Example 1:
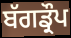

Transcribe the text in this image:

ਬੱਗਡ੍ਰੌਪ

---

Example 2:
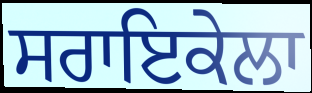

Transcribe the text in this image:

ਸਰਾਇਕੇਲਾ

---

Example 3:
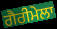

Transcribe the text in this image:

ਗੈਰੀਮੇਲਾ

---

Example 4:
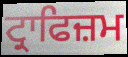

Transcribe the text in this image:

ਟ੍ਰਾਫਿਜ਼ਮ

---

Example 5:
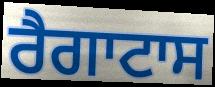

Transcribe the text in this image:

ਰੈਗਾਟਾਸ